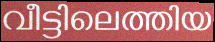
വീട്ടിലെത്തിയ